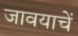
जावयाचें